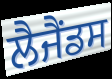
ਲੈਜੈਂਡਸ